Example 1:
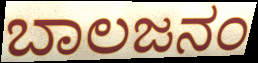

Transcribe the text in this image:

ಬಾಲಜನಂ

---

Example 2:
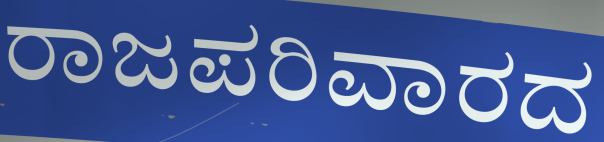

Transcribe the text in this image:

ರಾಜಪರಿವಾರದ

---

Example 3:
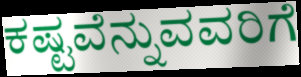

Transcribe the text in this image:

ಕಷ್ಟವೆನ್ನುವವರಿಗೆ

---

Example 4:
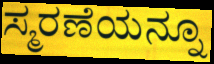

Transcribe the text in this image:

ಸ್ಮರಣೆಯನ್ನೂ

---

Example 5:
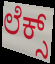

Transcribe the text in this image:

ಲೆಕ್ಸ್